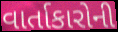
વાર્તાકારોની